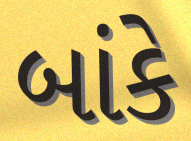
બાંકે